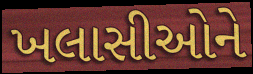
ખલાસીઓને